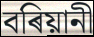
বৰিয়ানী